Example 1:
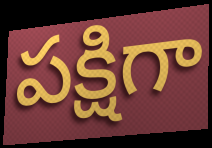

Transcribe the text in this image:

పక్షిగా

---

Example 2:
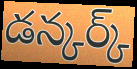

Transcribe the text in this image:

డన్కర్క్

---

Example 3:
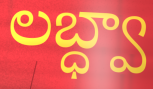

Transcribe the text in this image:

లబ్ధ్వా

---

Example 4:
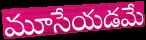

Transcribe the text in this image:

మూసేయడమే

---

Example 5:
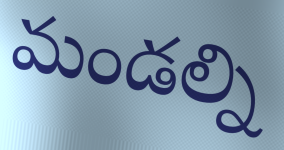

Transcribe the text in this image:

మండల్ని